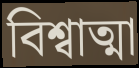
বিশ্বাত্মা